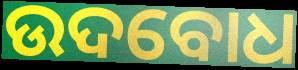
ଉଦବୋଧ